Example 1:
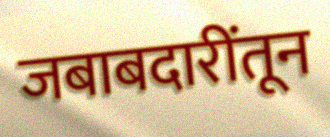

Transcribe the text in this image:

जबाबदारींतून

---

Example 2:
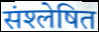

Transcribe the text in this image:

संश्लेषित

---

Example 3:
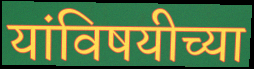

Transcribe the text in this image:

यांविषयीच्या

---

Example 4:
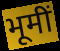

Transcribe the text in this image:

भूमीं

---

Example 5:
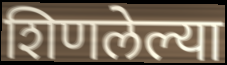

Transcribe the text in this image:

शिणलेल्या